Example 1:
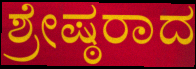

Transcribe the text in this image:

ಶ್ರೇಷ್ಠರಾದ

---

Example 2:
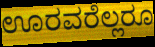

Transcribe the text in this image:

ಊರವರೆಲ್ಲರೂ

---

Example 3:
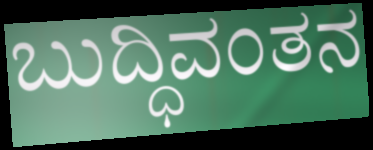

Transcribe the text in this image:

ಬುದ್ಧಿವಂತನ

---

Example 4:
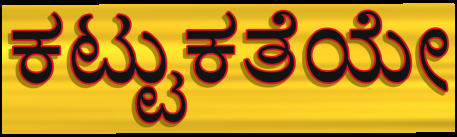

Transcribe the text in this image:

ಕಟ್ಟುಕತೆಯೇ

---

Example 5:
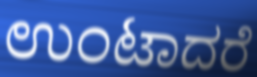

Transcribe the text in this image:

ಉಂಟಾದರೆ